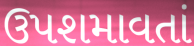
ઉપશમાવતાં